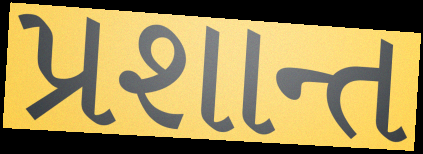
પ્રશાન્ત